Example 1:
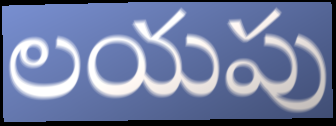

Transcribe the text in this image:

లయపు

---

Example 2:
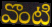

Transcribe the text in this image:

వొంటి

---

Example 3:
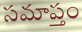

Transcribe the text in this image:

సమాప్తం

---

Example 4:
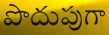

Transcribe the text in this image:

పొదుపుగా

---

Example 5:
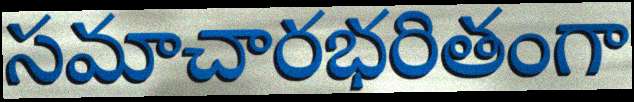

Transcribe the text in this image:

సమాచారభరితంగా